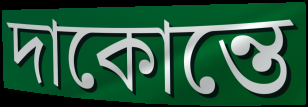
দাকোন্তে